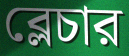
ব্লেচার